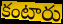
కంటారు